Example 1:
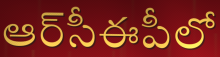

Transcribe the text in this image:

ఆర్‌సీఈపీలో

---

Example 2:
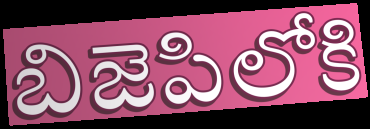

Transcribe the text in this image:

బిజెపిలోకి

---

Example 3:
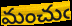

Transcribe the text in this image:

మంచుఁ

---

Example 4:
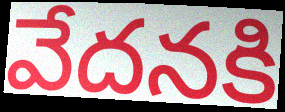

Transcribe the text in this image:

వేదనకి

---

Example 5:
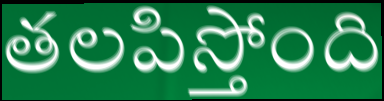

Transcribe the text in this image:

తలపిస్తోంది